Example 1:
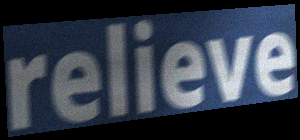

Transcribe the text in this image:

relieve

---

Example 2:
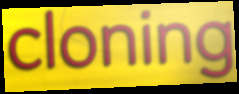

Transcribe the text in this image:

cloning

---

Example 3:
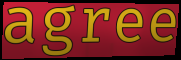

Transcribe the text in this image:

agree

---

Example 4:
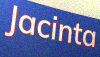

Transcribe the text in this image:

Jacinta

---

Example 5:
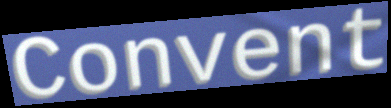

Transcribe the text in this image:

Convent